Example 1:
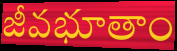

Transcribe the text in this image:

జీవభూతాం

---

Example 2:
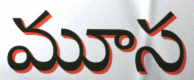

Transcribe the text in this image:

మూస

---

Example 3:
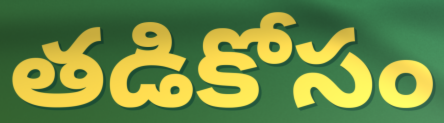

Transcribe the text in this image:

తడికోసం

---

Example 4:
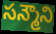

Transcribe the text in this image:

సన్మౌని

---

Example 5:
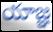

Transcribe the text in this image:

యాజ్ఞ